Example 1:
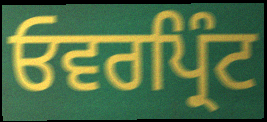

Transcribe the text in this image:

ਓਵਰਪ੍ਰਿੰਟ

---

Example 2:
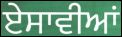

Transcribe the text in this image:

ਏਸਾਵੀਆਂ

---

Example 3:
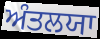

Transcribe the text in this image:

ਅੰਤਲਯਾ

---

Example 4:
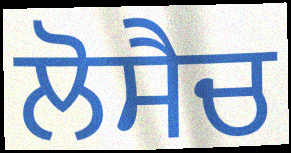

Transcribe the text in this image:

ਲੋਸੈਚ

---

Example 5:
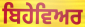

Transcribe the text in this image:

ਬਿਹੇਵਿਅਰ